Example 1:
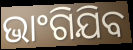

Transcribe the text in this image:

ଭାଂଗିଯିବ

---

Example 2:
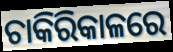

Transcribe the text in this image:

ଚାକିରିକାଳରେ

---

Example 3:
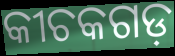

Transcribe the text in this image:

କୀଚକଗଡ଼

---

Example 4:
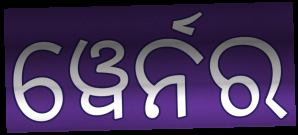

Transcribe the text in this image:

ୱେର୍ନର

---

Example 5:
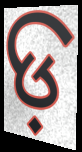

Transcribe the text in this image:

ଡ଼